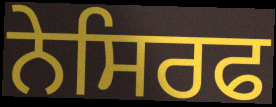
ਨੇਸਿਰਫ